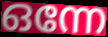
ഒന്നേ